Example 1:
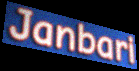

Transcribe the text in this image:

Janbari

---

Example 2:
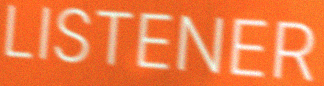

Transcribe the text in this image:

LISTENER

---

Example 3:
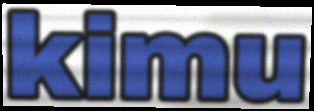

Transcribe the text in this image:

kimu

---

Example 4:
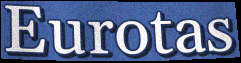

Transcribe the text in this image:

Eurotas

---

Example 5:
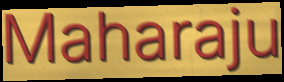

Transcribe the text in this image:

Maharaju